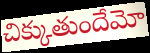
చిక్కుతుందేమో